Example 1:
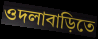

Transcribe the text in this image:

ওদলাবাড়িতে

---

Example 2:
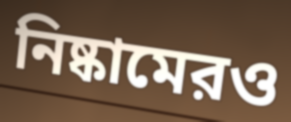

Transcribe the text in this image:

নিষ্কামেরও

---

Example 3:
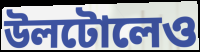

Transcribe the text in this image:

উলটোলেও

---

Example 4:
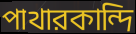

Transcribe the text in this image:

পাথারকান্দি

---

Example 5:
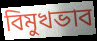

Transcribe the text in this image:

বিমুখভাব